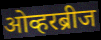
ओव्हरब्रीज